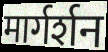
मार्गर्शन